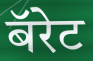
बॅरेट